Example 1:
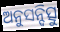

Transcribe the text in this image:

ଅନୁସନ୍ଦିତ୍ସୁ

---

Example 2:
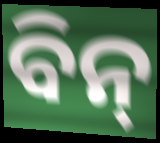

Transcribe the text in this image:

ବିନ୍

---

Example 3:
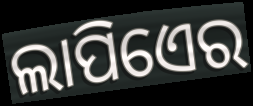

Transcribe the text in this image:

ଲାପିଏେର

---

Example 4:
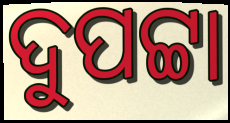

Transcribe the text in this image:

ଦୁପଟ୍ଟା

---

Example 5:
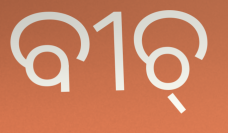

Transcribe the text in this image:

ବୀଚ୍